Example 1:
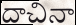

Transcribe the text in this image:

దాచినా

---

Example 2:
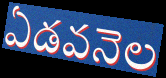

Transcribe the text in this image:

ఏడవనెల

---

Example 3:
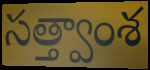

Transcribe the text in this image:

సత్త్వాంశ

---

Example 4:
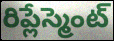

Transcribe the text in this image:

రిప్లేస్మెంట్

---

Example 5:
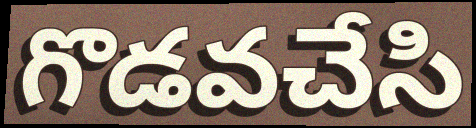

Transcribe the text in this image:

గొడవచేసి